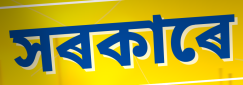
সৰকাৰে